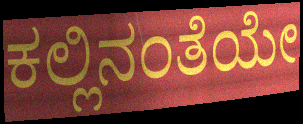
ಕಲ್ಲಿನಂತೆಯೇ